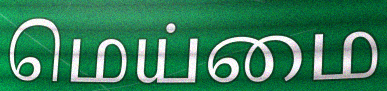
மெய்மை